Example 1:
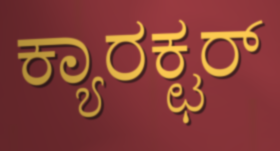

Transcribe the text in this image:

ಕ್ಯಾರಕ್ಟರ್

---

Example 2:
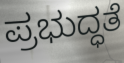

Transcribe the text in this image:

ಪ್ರಭುದ್ಧತೆ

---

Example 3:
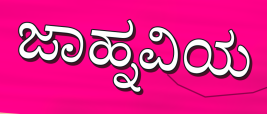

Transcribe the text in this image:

ಜಾಹ್ನವಿಯ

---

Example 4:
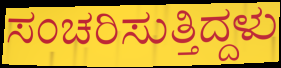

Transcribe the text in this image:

ಸಂಚರಿಸುತ್ತಿದ್ದಳು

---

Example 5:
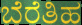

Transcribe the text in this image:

ಬೆರೆತಿಹ